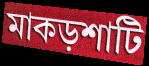
মাকড়শাটি